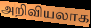
அறிவியலாக